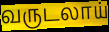
வருடலாய்